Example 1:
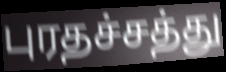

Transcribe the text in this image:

புரதச்சத்து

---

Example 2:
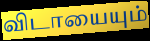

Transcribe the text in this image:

விடாயையும்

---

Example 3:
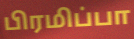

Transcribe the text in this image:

பிரமிப்பா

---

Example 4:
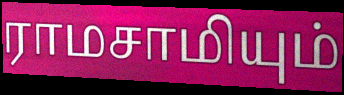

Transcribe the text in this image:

ராமசாமியும்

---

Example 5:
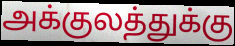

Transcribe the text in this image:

அக்குலத்துக்கு